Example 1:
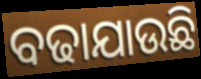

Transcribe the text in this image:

ବଢାଯାଉଛି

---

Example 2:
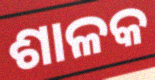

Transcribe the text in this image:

ଶାଳକ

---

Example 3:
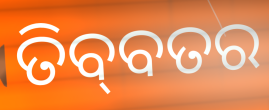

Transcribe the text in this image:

ତିବ୍‌ବତର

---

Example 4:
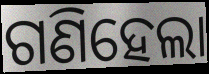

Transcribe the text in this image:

ଗଣିହେଲା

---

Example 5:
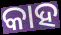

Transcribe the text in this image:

କାହ